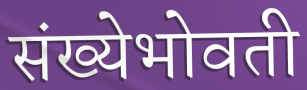
संख्येभोवती